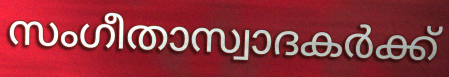
സംഗീതാസ്വാദകർക്ക്